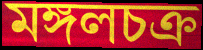
মঙ্গলচক্র